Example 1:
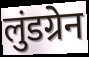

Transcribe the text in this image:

लुंडग्रेन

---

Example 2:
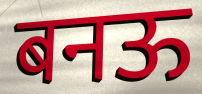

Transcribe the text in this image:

बनऊ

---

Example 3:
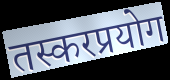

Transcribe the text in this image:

तस्करप्रयोग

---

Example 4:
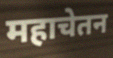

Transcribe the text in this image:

महाचेतन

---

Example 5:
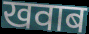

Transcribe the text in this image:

खवाब